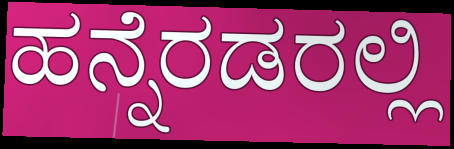
ಹನ್ನೆರಡರಲ್ಲಿ